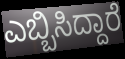
ಎಬ್ಬಿಸಿದ್ದಾರೆ